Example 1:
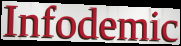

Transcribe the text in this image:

Infodemic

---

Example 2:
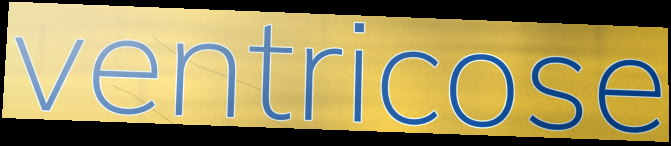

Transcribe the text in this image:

ventricose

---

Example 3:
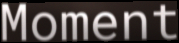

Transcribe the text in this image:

Moment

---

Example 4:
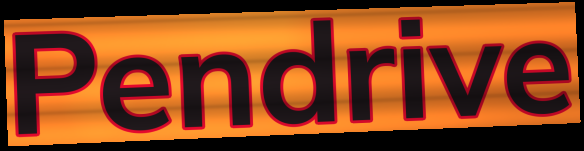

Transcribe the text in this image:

Pendrive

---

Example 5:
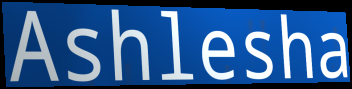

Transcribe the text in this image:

Ashlesha